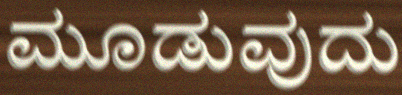
ಮೂಡುವುದು